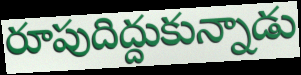
రూపుదిద్దుకున్నాడు